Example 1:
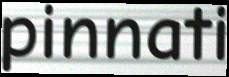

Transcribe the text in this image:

pinnati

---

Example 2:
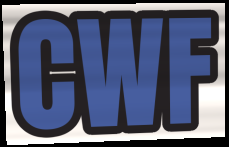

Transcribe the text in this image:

CWF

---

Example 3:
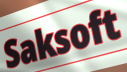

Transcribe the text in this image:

Saksoft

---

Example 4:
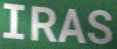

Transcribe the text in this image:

IRAS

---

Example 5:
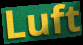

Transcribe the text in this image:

Luft